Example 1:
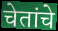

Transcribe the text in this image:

चेतांचे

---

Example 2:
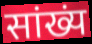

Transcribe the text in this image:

सांख्यं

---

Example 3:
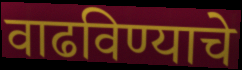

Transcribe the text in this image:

वाढविण्याचे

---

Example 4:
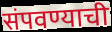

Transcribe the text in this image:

संपवण्याची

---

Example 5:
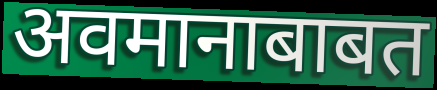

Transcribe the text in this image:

अवमानाबाबत